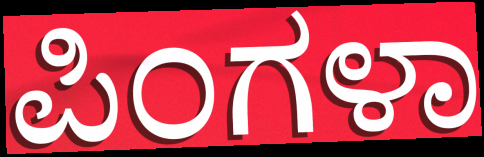
ಪಿಂಗಳಾ